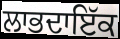
ਲਾਭਦਾਇੱਕ